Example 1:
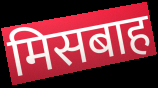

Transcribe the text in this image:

मिसबाह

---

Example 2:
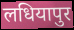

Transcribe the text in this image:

लधियापुर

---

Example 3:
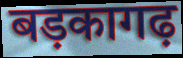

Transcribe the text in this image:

बड़कागढ़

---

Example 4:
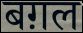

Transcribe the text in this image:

बग़ल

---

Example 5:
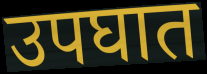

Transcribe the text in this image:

उपघात